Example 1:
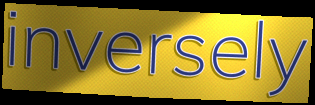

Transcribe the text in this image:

inversely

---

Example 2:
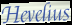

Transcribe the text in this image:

Hevelius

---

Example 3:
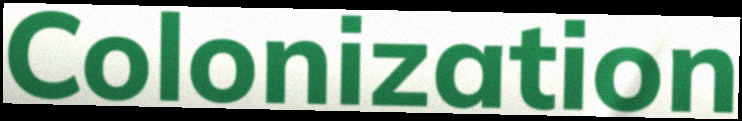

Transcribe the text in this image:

Colonization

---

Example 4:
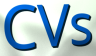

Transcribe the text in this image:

CVs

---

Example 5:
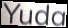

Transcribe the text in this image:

Yuda